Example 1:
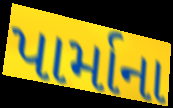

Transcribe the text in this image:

પાર્માના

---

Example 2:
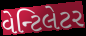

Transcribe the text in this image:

વેન્‍ટિલેટર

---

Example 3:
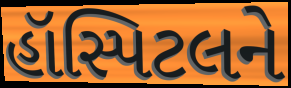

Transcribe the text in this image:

હૉસ્પિટલને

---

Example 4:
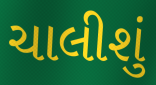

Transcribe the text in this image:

ચાલીશું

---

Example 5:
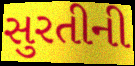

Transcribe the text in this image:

સુરતીની